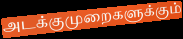
அடக்குமுறைகளுக்கும்